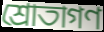
শ্রোতাগণ